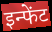
इन्फेंट